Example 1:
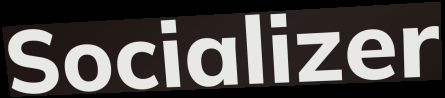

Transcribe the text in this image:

Socializer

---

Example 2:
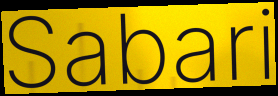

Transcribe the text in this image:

Sabari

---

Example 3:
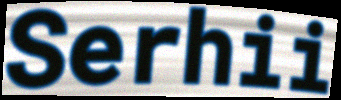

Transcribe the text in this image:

Serhii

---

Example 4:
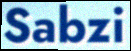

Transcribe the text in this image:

Sabzi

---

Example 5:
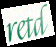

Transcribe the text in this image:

retd